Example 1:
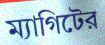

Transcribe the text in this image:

ম্যাগিটের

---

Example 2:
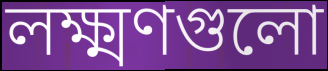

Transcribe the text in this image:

লক্ষ্মণগুলো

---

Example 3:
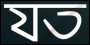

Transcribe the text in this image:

যত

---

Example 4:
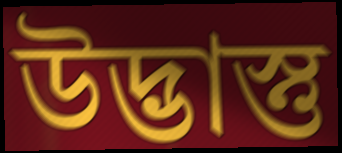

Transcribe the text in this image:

উদ্ভাস্তু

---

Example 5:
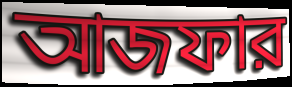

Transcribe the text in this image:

আজফার